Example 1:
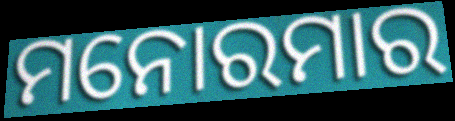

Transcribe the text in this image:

ମନୋରମାର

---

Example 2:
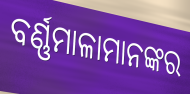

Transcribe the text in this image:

ବର୍ଣ୍ଣମାଳାମାନଙ୍କର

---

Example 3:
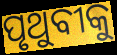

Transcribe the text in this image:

ପୃଥୁବୀକୁ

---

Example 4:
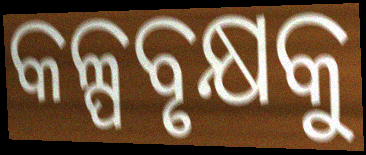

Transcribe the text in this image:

କଳ୍ପବୃକ୍ଷକୁ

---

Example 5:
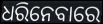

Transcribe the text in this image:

ଧରିନେବାରେ